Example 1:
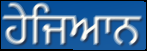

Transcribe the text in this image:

ਹੇਜਿਆਨ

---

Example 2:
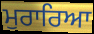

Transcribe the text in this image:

ਮੁਰਾਰਿਆ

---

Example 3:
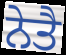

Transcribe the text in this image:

ਨੇਤੈ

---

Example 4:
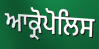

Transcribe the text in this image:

ਆਕ੍ਰੋਪੋਲਿਸ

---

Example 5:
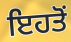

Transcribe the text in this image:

ਇਹਤੋਂ